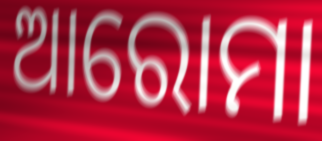
ଆରୋମା